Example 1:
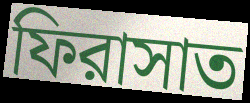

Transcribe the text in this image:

ফিরাসাত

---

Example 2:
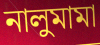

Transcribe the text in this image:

নালুমামা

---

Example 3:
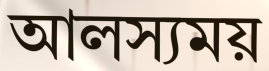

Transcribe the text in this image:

আলস্যময়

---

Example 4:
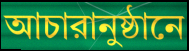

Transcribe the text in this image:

আচারানুষ্ঠানে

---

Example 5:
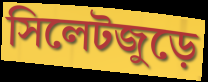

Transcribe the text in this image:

সিলেটজুড়ে